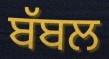
ਬੱਬਲ